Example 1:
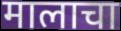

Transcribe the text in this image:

मालाचा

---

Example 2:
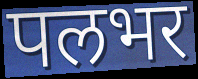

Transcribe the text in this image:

पलभर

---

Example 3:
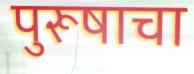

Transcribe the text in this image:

पुरूषाचा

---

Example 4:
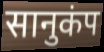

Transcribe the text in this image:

सानुकंप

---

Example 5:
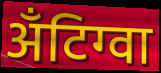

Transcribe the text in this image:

अँटिग्वा